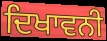
ਦਿਖਾਵਨੀ